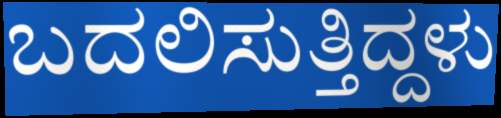
ಬದಲಿಸುತ್ತಿದ್ದಳು